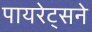
पायरेट्सने